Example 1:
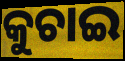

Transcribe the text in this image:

କୁଚାଇ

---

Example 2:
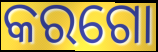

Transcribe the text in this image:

କରଗୋ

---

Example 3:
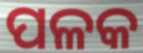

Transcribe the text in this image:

ପଳକ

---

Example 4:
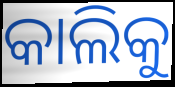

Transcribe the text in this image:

କାଲିକୁ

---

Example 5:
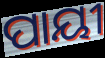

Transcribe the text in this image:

ପାୟୀ